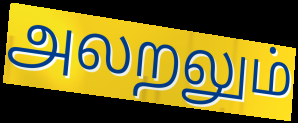
அலறலும்